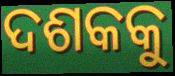
ଦଶକକୁ